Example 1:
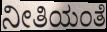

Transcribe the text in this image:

ನೀತಿಯಂತೆ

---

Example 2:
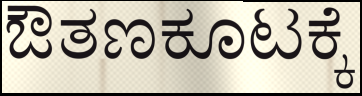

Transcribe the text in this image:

ಔತಣಕೂಟಕ್ಕೆ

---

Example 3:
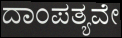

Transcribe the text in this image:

ದಾಂಪತ್ಯವೇ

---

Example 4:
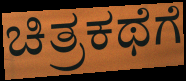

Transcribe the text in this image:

ಚಿತ್ರಕಥೆಗೆ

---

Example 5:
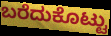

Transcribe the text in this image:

ಬರೆದುಕೊಟ್ಟು